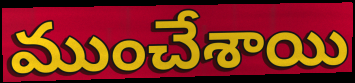
ముంచేశాయి